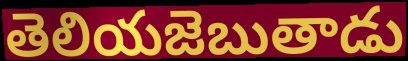
తెలియజెబుతాడు